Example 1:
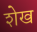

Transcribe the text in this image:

शेख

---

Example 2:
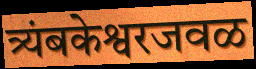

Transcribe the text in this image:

त्र्यंबकेश्वरजवळ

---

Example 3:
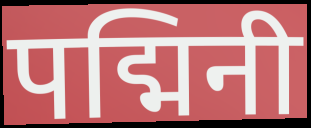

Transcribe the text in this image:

पद्मिनी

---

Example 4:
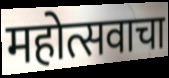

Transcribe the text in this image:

महोत्सवाचा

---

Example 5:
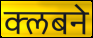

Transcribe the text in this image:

क्‍लबने